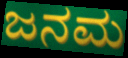
ಜನಮ